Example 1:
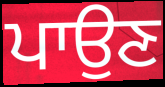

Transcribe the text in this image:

ਪਾਉਣ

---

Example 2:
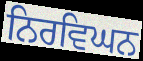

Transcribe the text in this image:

ਨਿਰਵਿਘਨ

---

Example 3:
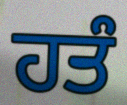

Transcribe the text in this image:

ਹਤੰ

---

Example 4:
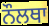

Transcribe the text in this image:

ਨੌਲਥਾ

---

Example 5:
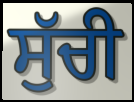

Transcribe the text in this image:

ਸੁੱਚੀ